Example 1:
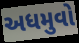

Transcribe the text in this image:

અધમુવો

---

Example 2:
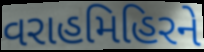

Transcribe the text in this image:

વરાહમિહિરને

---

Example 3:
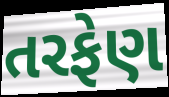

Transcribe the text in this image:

તરફેણ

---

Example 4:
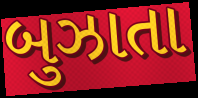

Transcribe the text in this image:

બુઝાતા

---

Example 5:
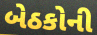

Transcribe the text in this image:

બેઠકોની